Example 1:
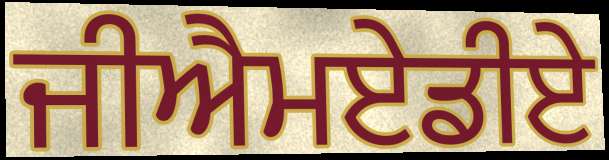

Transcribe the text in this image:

ਜੀਐਮਏਡੀਏ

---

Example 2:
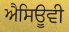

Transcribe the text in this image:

ਐਸਿਊਵੀ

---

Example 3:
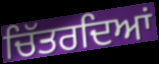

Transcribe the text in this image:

ਚਿੱਤਰਦਿਆਂ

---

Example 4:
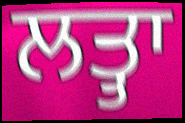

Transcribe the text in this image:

ਲਤ੍ਤਾ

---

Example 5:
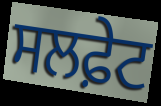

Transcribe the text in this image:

ਸਲਫ਼ੇਟ